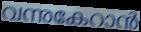
വന്നുകേറാൻ